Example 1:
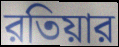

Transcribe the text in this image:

রতিয়ার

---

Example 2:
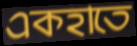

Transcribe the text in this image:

একহাতে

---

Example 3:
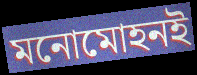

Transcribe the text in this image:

মনোমোহনই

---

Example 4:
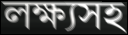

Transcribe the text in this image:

লক্ষ্যসহ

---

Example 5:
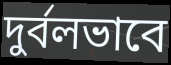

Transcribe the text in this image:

দুর্বলভাবে